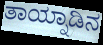
ತಾಯ್ನಾಡಿನ